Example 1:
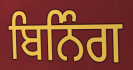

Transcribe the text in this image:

ਬਿਨਿੰਗ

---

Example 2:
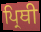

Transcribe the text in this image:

ਪ੍ਰਿਥੀ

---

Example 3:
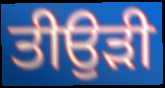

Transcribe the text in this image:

ਤੀਉੜੀ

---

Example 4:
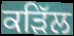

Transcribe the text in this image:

ਕੜਿੱਲ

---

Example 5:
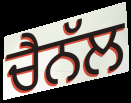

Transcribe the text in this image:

ਚੈਨੱਲ